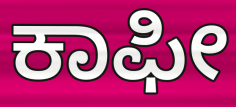
ಕಾಫೀ